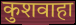
कुशवाहा